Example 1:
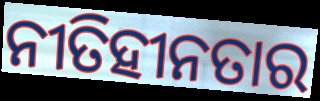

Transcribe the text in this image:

ନୀତିହୀନତାର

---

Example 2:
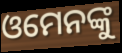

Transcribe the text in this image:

ଓମେନଙ୍କୁ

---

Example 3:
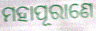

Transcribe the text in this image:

ମହାପୂରାଣେ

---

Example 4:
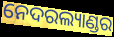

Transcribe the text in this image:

ନେଦରଲ୍ୟାଣ୍ଡର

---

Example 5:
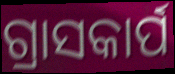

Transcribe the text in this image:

ଗ୍ରାସକାର୍ପ